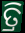
ତ୍ରି